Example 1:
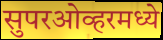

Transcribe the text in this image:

सुपरओव्हरमध्ये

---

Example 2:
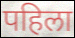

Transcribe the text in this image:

पहिला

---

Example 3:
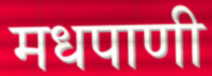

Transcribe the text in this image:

मधपाणी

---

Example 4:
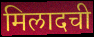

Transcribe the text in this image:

मिलादची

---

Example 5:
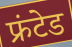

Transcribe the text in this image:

फ्रंटेड